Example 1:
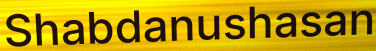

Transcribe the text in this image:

Shabdanushasan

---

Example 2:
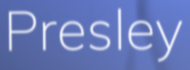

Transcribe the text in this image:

Presley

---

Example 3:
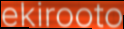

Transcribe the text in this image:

ekirooto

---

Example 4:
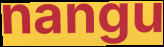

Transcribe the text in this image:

nangu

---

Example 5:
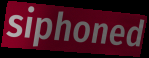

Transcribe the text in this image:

siphoned